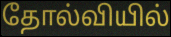
தோல்வியில்